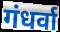
गंधर्वा